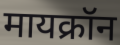
मायक्रॉन